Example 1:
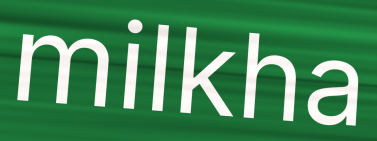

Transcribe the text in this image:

milkha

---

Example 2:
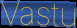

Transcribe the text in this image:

Vastu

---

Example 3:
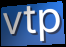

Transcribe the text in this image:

vtp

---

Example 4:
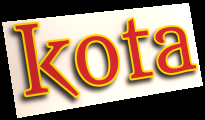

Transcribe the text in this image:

kota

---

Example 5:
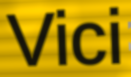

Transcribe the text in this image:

Vici